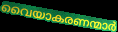
വൈയാകരണന്മാർ